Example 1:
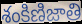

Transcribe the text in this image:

శంకిణిజాతి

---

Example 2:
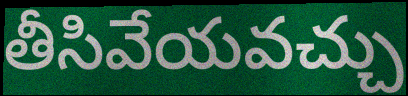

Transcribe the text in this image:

తీసివేయవచ్చు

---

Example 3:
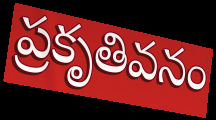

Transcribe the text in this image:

ప్రకృతివనం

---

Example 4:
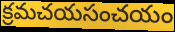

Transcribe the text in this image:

క్రమచయసంచయం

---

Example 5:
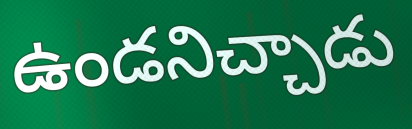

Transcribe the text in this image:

ఉండనిచ్చాడు